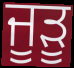
ਜੂੜੂ